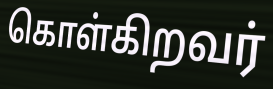
கொள்கிறவர்